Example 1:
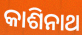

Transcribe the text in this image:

କାଶିନାଥ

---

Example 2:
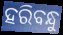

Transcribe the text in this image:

ହରିବନ୍ଧୁ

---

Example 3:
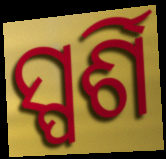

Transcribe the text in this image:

ସ୍ପର୍ଶି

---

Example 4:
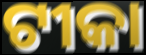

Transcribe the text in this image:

ଟୀକା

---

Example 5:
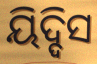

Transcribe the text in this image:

ୟିଦ୍ଦିସ